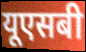
यूएसबी